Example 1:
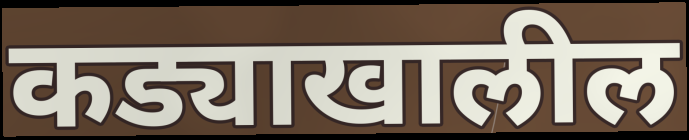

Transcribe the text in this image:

कड्याखालील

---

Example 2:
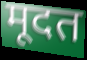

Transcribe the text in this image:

मूदत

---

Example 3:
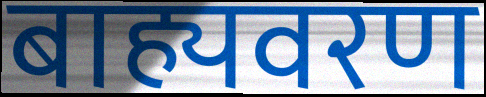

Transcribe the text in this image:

बाह्यवरण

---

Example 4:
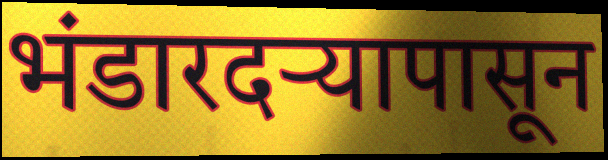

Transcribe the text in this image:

भंडारदऱ्यापासून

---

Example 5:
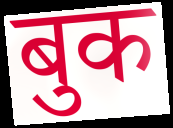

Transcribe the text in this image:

बुक